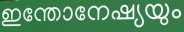
ഇന്തോനേഷ്യയും